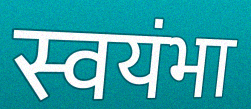
स्वयंभा